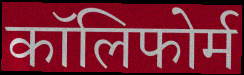
कॉलिफोर्म